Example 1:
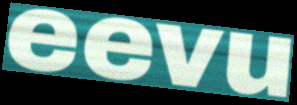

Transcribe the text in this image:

eevu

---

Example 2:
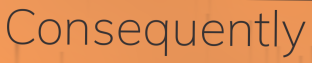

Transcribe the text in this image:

Consequently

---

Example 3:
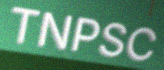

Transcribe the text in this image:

TNPSC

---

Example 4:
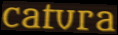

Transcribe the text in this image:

catura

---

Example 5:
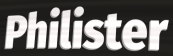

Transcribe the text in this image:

Philister